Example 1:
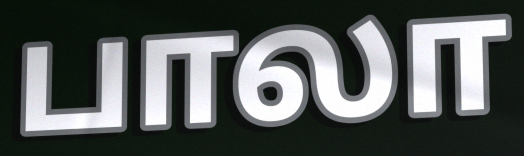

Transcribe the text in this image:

பாலா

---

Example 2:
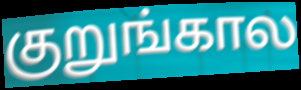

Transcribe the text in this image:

குறுங்கால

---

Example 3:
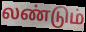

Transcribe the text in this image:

லண்டும்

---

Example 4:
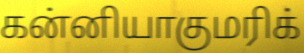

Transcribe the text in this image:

கன்னியாகுமரிக்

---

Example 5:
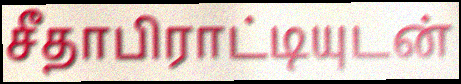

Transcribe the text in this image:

சீதாபிராட்டியுடன்